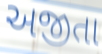
અજીતા